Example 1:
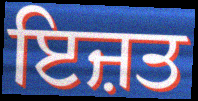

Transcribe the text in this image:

ਇਜ਼ਤ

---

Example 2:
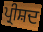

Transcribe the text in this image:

ਪ੍ਰ੍ਰੀਸ਼ਦ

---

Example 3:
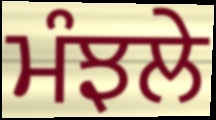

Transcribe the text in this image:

ਮੰਝਲੇ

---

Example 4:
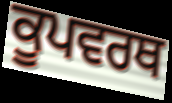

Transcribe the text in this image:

ਕੂਪਵਰਥ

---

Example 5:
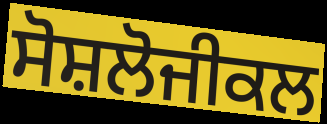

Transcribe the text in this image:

ਸੋਸ਼ਲੋਜੀਕਲ